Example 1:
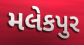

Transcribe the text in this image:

મલેકપુર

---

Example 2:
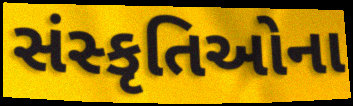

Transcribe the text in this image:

સંસ્કૃતિઓના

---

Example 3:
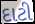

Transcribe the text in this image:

દાટી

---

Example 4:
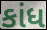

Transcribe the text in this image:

કાંધ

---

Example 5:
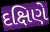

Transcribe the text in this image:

દક્ષિણે